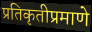
प्रतिकृतीप्रमाणे